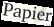
Papier